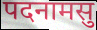
पदनामसु